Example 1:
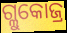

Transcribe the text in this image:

ଗ୍ଲୁକୋଜ୍ର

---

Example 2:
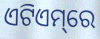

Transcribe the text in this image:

ଏଟିଏମ୍‌ରେ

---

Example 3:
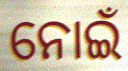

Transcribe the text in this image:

ନୋଇଁ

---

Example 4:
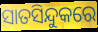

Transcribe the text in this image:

ସାତସିନ୍ଦୁକରେ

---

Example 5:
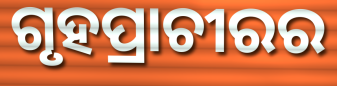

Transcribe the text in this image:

ଗୃହପ୍ରାଚୀରର